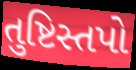
તુષ્ટિસ્તપો